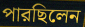
পারছিলেন